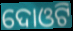
ଦୋଓଟି